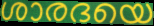
ശാരദയെ